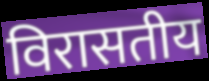
विरासतीय